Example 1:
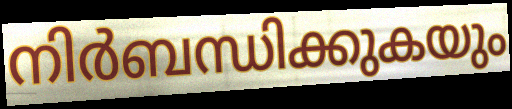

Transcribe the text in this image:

നിർബന്ധിക്കുകയും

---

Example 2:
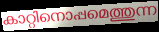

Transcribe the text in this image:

കാറ്റിനൊപ്പമെത്തുന്ന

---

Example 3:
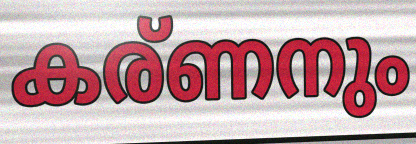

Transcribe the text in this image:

കര്ണനും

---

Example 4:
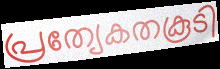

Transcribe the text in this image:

പ്രത്യേകതകൂടി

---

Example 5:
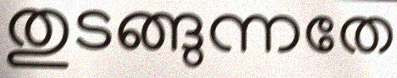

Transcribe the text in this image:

തുടങ്ങുന്നതേ